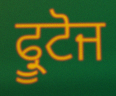
ਫ੍ਰੂਟੋਜ